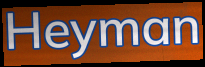
Heyman